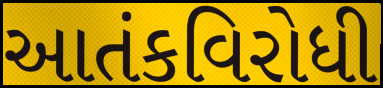
આતંકવિરોધી